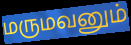
மருமவனும்